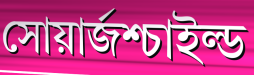
সোয়ার্জশ্চাইল্ড